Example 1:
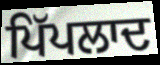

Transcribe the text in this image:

ਪਿੱਪਲਾਦ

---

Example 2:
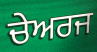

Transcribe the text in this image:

ਚੇਅਰਜ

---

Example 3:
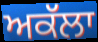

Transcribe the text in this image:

ਅਕੱਲਾ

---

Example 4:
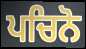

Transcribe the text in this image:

ਪਚਿਨੋ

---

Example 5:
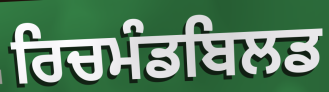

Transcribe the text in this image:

ਰਿਚਮੰਡਬਿਲਡ